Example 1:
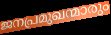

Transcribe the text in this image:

ജനപ്രമുഖന്മാരും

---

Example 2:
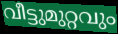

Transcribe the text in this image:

വീട്ടുമുറ്റവും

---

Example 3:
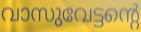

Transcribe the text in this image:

വാസുവേട്ടന്റെ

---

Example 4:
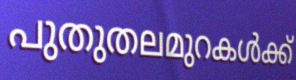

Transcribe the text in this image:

പുതുതലമുറകൾക്ക്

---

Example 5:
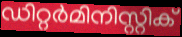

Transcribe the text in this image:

ഡിറ്റർമിനിസ്റ്റിക്